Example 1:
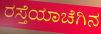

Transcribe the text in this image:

ರಸ್ತೆಯಾಚೆಗಿನ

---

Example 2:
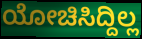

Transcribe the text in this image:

ಯೋಚಿಸಿದ್ದಿಲ್ಲ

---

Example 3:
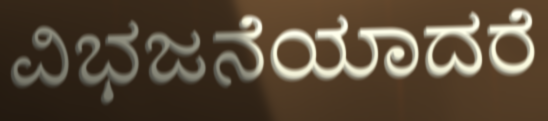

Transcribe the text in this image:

ವಿಭಜನೆಯಾದರೆ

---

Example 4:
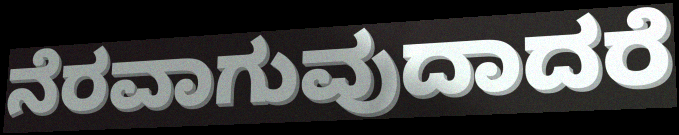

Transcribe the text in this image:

ನೆರವಾಗುವುದಾದರೆ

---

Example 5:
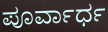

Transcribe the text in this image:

ಪೂರ್ವಾರ್ಧ